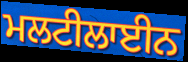
ਮਲਟੀਲਾਈਨ